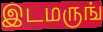
இடமருங்